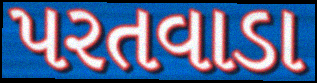
પરતવાડા